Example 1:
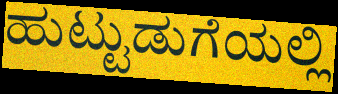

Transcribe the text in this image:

ಹುಟ್ಟುಡುಗೆಯಲ್ಲಿ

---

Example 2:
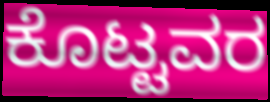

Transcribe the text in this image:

ಕೊಟ್ಟವರ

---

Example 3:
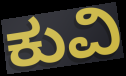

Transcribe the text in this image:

ಕುವಿ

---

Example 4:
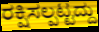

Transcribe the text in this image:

ರಕ್ಷಿಸಲ್ಪಟ್ಟದ್ದು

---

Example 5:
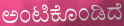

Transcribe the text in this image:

ಅಂಟಿಕೊಂಡಿದೆ